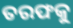
ତରଫକୁ